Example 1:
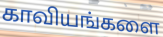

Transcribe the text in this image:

காவியங்களை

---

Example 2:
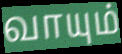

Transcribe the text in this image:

வாயும்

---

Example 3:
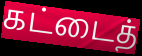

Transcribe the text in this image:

கட்டைத்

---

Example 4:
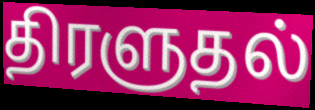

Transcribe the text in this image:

திரளுதல்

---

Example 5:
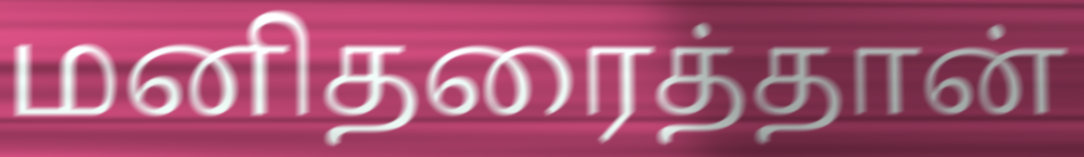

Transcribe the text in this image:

மனிதரைத்தான்